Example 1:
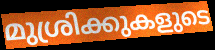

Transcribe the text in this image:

മുശ്രിക്കുകളുടെ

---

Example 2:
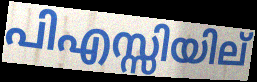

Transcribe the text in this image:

പിഎസ്സിയില്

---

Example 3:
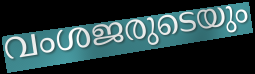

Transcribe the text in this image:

വംശജരുടെയും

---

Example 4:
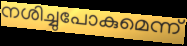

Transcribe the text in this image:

നശിച്ചുപോകുമെന്ന്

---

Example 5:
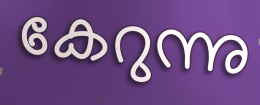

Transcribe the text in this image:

കേറുന്നു